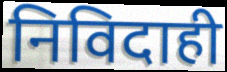
निविदाही